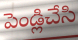
పెండ్లిచేసి